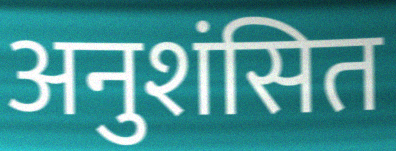
अनुशंसित